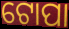
ଟୋପା